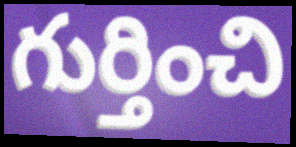
గుర్తించి